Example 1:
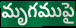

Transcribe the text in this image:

మృగముపై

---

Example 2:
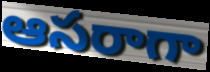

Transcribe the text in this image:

ఆసరాగా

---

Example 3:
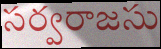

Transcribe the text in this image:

సర్వరాజసు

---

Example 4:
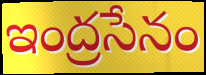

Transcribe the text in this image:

ఇంద్రసేనం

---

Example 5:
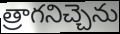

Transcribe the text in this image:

త్రాగనిచ్చెను